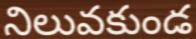
నిలువకుండ